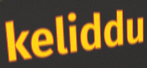
keliddu